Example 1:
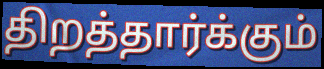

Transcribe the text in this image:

திறத்தார்க்கும்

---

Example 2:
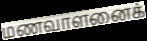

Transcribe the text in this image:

மணவாளனைக்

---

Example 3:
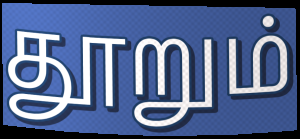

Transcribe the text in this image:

தூறும்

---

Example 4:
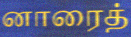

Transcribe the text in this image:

னாரைத்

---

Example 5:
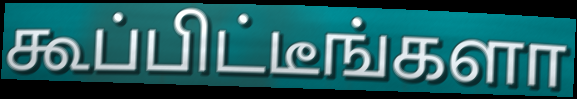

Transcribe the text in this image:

கூப்பிட்டீங்களா